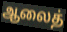
ஆலைத்